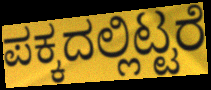
ಪಕ್ಕದಲ್ಲಿಟ್ಟರೆ